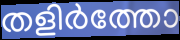
തളിർത്തോ